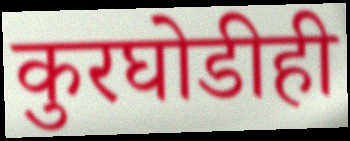
कुरघोडीही